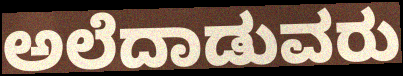
ಅಲೆದಾಡುವರು